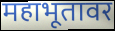
महाभूतावर